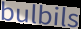
bulbils